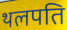
थलपति